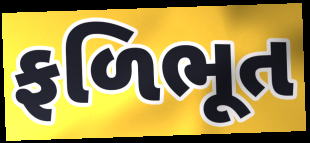
ફળિભૂત